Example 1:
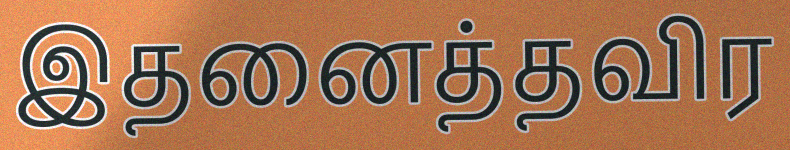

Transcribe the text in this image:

இதனைத்தவிர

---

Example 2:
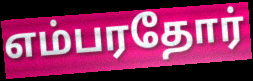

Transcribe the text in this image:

எம்பரதோர்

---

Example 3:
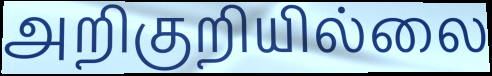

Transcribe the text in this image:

அறிகுறியில்லை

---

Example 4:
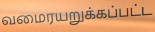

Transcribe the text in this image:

வமைரயறுக்கப்பட்ட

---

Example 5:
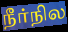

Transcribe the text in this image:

நீர்நில